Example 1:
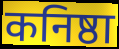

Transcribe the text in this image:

कनिष्ठा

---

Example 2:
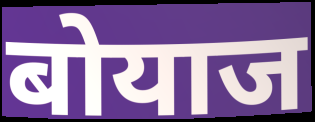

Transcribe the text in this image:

बोयाज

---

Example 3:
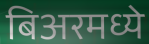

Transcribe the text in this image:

बिअरमध्ये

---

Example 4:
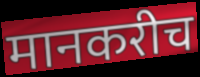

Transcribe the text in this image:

मानकरीच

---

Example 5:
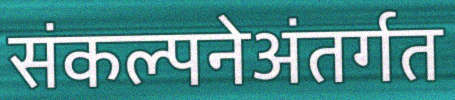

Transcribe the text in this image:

संकल्पनेअंतर्गत